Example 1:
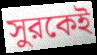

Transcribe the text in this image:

সুরকেই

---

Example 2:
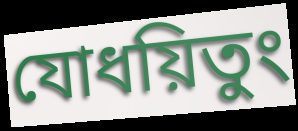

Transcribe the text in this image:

যোধয়িতুং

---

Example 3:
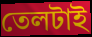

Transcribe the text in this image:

তেলটাই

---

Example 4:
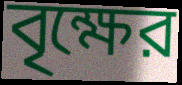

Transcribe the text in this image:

বৃক্ষের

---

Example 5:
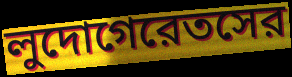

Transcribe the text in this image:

লুদোগেরেতসের